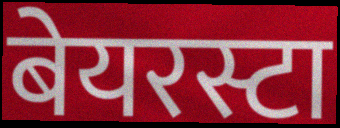
बेयरस्टा